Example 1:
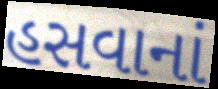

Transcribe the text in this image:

હસવાનાં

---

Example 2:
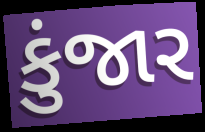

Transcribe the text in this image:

કુંજાર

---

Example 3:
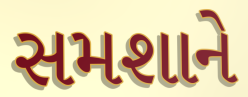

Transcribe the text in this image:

સમશાને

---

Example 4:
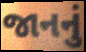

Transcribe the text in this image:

જાનનું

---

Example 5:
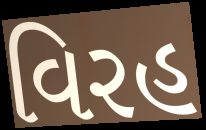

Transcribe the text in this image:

વિરહ